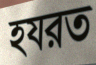
হযরত